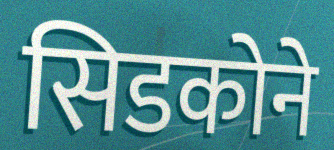
सिडकोने